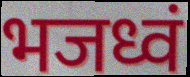
भजध्वं